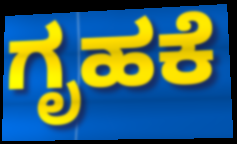
ಗೃಹಕೆ